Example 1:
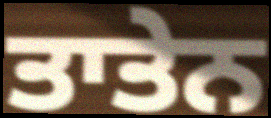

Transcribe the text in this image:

ਤਾਤੇਨ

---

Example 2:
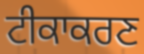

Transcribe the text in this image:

ਟੀਕਾਕਰਣ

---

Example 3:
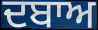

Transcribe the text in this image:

ਦਬਾਅ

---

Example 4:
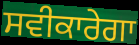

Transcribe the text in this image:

ਸਵੀਕਾਰੇਗਾ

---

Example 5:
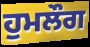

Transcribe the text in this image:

ਹੁਮਲੌਗ